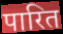
पारित